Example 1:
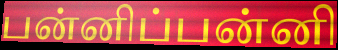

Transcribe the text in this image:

பன்னிப்பன்னி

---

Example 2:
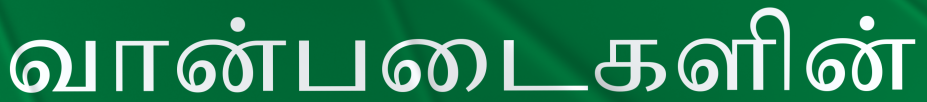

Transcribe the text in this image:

வான்படைகளின்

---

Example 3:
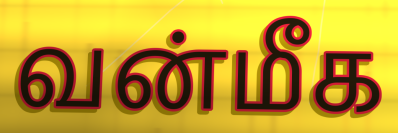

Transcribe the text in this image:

வன்மீக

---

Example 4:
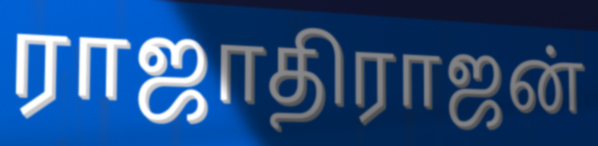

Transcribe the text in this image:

ராஜாதிராஜன்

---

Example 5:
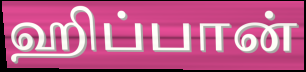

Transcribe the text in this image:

ஹிப்பான்